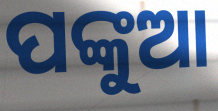
ପଙ୍କୁଆ